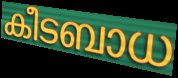
കീടബാധ